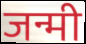
जन्मी